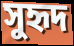
সুহৃদ